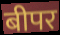
बीपर